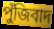
পুঁজিবাদ